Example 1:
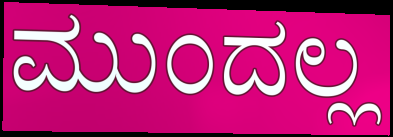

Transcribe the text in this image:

ಮುಂದಲ್ಲ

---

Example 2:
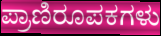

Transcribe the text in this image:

ಪ್ರಾಣಿರೂಪಕಗಳು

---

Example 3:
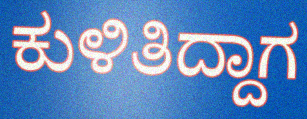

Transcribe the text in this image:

ಕುಳಿತಿದ್ದಾಗ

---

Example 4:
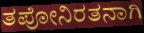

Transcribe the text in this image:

ತಪೋನಿರತನಾಗಿ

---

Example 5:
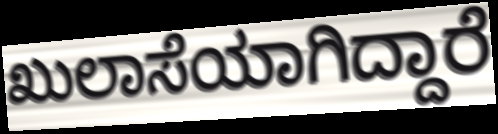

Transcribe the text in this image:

ಖುಲಾಸೆಯಾಗಿದ್ದಾರೆ